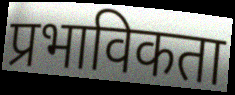
प्रभाविकता